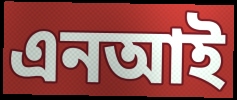
এনআই